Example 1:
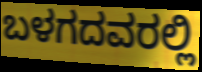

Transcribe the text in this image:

ಬಳಗದವರಲ್ಲಿ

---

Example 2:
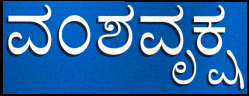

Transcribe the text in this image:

ವಂಶವೃಕ್ಷ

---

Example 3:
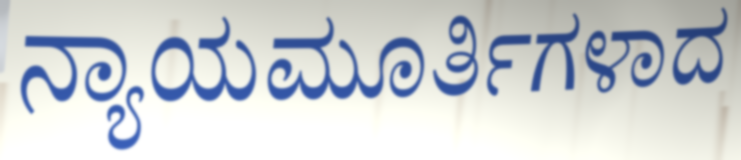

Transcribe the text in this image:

ನ್ಯಾಯಮೂರ್ತಿಗಳಾದ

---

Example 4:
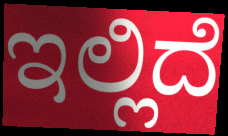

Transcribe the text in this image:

ಇಲ್ಲಿದೆ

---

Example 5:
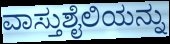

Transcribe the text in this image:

ವಾಸ್ತುಶೈಲಿಯನ್ನು